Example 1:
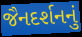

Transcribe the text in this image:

જૈનદર્શનનું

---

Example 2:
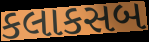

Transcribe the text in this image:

કલાકસબ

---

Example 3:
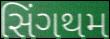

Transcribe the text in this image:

સિંગથમ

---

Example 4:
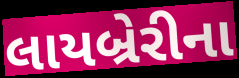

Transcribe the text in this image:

લાયબ્રેરીના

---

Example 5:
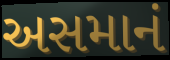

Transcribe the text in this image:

અસમાનં